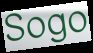
Sogo